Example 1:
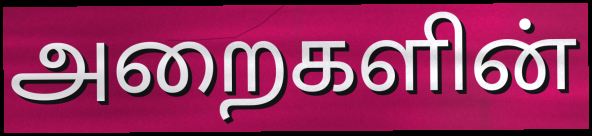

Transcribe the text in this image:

அறைகளின்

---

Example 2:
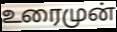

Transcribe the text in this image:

உரைமுன்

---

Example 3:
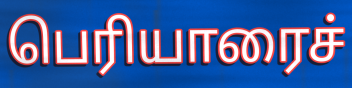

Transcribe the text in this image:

பெரியாரைச்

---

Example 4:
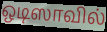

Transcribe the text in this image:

ஒடிஸாவில்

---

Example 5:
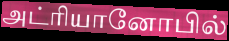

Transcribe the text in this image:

அட்ரியானோபில்